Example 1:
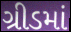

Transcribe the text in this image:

ગ્રીડમાં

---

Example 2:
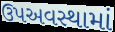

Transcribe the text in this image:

ઉપઅવસ્થામાં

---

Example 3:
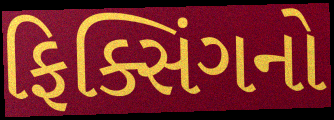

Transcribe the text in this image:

ફિક્સિંગનો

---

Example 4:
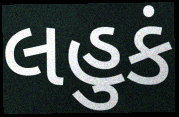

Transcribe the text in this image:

લહુકં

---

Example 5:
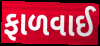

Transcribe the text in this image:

ફાળવાઈ